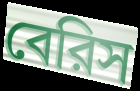
বেরিস